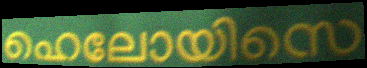
ഹെലോയിസെ